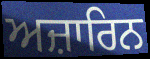
ਅਜ਼ਾਰਿਨ